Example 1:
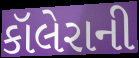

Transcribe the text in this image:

કૉલેરાની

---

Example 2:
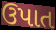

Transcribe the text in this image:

ઉપાત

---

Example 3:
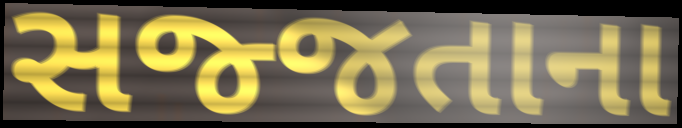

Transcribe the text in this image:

સજ્જતાના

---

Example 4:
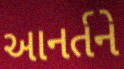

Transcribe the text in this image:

આનર્તને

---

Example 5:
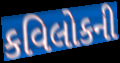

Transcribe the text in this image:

કવિલોકની